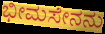
ಭೀಮಸೇನನು